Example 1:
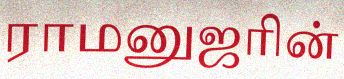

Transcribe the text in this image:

ராமனுஜரின்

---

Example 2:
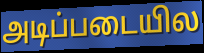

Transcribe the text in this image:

அடிப்படையில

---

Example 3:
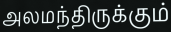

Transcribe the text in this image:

அலமந்திருக்கும்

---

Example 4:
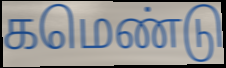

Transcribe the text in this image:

கமெண்டு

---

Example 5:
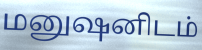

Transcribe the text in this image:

மனுஷனிடம்